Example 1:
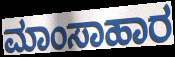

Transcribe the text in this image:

ಮಾಂಸಾಹಾರ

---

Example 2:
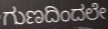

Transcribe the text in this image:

ಗುಣದಿಂದಲೇ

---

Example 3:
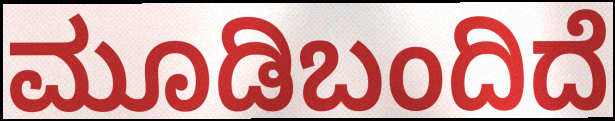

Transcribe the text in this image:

ಮೂಡಿಬಂದಿದೆ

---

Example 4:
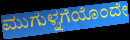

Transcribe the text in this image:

ಮುಗುಳ್ನಗೆಯೊಂದೇ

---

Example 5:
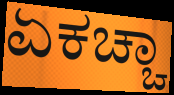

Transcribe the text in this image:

ಏಕಚ್ಚಾ